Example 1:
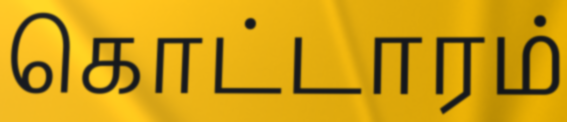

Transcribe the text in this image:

கொட்டாரம்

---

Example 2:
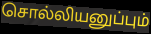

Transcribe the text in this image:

சொல்லியனுப்பும்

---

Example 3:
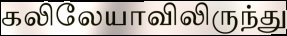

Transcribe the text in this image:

கலிலேயாவிலிருந்து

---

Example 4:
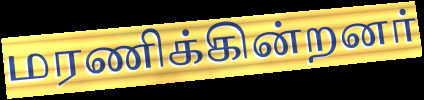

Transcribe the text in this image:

மரணிக்கின்றனர்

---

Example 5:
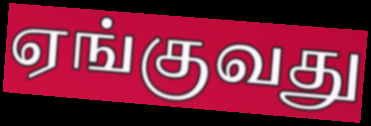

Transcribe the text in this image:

ஏங்குவது